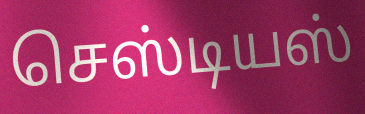
செஸ்டியஸ்